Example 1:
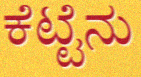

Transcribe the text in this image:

ಕೆಟ್ಟೆನು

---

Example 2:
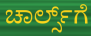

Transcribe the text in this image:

ಚಾರ್ಲ್ಸ್‌ಗೆ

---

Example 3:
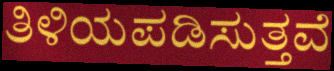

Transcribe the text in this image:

ತಿಳಿಯಪಡಿಸುತ್ತವೆ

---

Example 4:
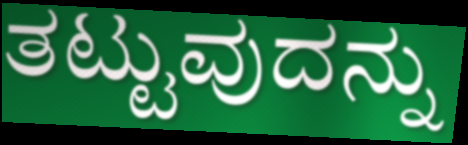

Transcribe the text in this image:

ತಟ್ಟುವುದನ್ನು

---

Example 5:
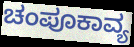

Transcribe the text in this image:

ಚಂಪೂಕಾವ್ಯ